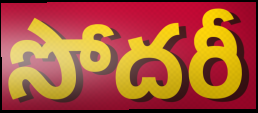
సోదరీ